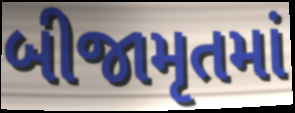
બીજામૃતમાં